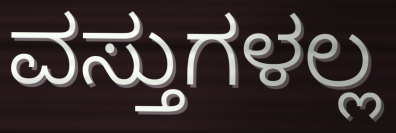
ವಸ್ತುಗಳಲ್ಲ